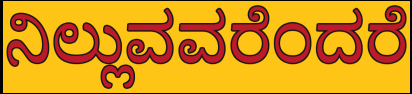
ನಿಲ್ಲುವವರೆಂದರೆ